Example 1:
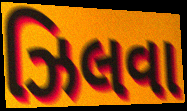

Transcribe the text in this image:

ઝિલવા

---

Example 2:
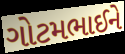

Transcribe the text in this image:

ગોટમભાઈને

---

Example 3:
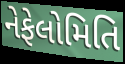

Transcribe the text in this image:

નેફેલોમિતિ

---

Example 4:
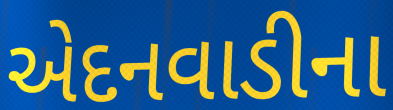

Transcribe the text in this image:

એદનવાડીના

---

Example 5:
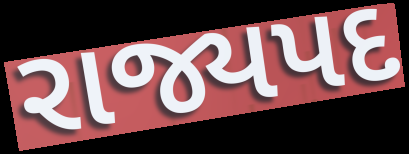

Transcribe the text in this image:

રાજ્યપદ